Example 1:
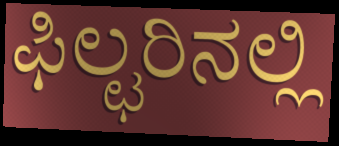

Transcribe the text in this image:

ಫಿಲ್ಟರಿನಲ್ಲಿ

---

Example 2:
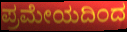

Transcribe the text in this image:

ಪ್ರಮೇಯದಿಂದ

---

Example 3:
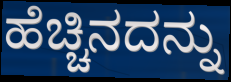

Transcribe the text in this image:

ಹೆಚ್ಚಿನದನ್ನು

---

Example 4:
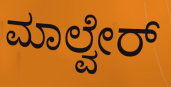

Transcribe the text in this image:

ಮಾಲ್ವೇರ್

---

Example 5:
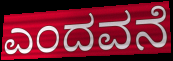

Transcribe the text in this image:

ಎಂದವನೆ